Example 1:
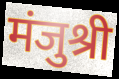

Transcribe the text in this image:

मंजुश्री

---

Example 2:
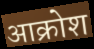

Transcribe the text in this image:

आक्रोश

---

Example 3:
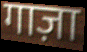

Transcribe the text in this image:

गाज़ा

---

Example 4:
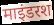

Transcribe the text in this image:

माइंडरश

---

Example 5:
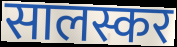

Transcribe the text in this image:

सालस्कर